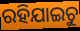
ରହିଯାଇଚୁ